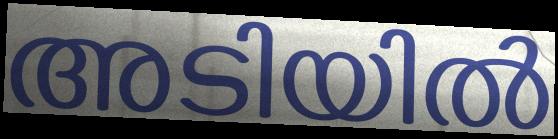
അടിയിൽ